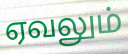
ஏவலும்